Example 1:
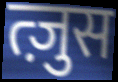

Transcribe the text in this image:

त्ज़ुस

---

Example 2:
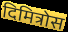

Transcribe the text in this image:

दिमित्रोस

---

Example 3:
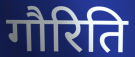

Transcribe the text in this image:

गौरिति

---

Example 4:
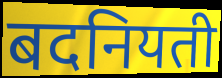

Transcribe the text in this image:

बदनियती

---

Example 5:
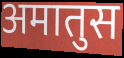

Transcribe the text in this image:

अमातुस